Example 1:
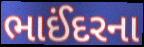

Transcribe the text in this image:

ભાઈંદરના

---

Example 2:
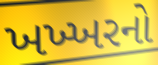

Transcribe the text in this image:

ખખ્ખરનો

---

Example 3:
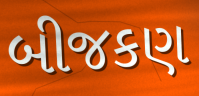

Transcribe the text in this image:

બીજકણ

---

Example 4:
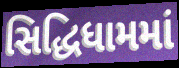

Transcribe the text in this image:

સિદ્ધિધામમાં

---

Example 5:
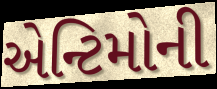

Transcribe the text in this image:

એન્ટિમોની